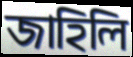
জাহিলি